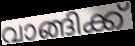
വാങ്ങിക്ക്